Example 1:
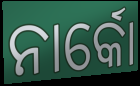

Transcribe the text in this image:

ନାର୍କୋ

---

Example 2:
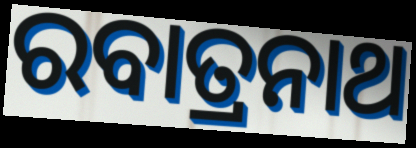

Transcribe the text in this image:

ରବାତ୍ରନାଥ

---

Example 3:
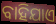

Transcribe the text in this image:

ବାହିଯାଏ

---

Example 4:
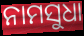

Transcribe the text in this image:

ନାମସୁଧା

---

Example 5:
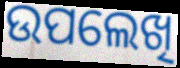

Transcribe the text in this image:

ଉପଲେଖି